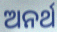
ଅନର୍ଥ